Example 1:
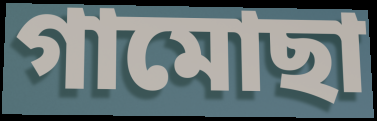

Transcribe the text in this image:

গামোছা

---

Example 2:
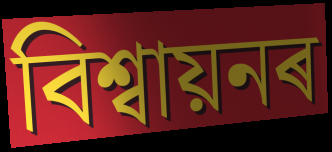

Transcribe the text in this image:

বিশ্বায়নৰ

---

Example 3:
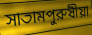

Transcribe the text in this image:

সাতামপুৰুষীয়া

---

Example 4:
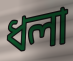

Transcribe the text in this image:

ধলা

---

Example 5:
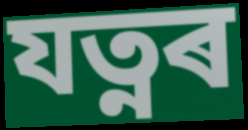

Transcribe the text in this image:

যত্নৰ